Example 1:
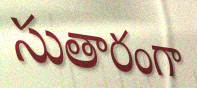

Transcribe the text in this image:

సుతారంగా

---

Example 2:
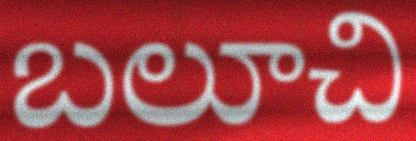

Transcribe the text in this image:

బలూచి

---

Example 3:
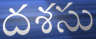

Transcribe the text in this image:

దశసు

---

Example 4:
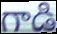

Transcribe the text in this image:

గాడి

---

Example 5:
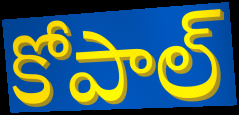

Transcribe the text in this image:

కోపాల్